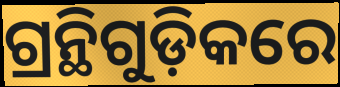
ଗ୍ରନ୍ଥିଗୁଡ଼ିକରେ